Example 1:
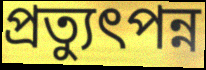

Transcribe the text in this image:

প্রত্যুৎপন্ন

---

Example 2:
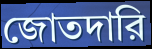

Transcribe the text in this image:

জোতদারি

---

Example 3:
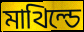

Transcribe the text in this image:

মাথিল্ডে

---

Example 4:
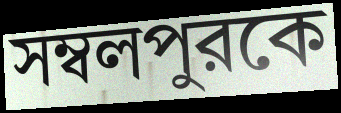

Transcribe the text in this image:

সম্বলপুরকে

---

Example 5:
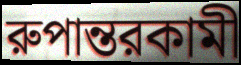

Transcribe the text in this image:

রুপান্তরকামী